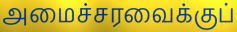
அமைச்சரவைக்குப்